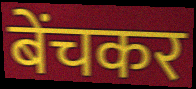
बेंचकर